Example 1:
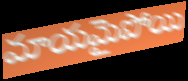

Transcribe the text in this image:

మాయమైపోయి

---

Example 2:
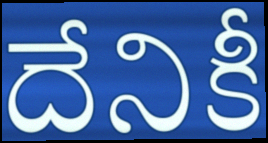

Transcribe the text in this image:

దేనికీ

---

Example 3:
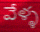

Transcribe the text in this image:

వేళ్ళ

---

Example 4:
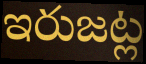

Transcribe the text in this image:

ఇరుజట్ల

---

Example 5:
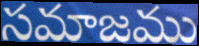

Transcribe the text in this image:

సమాజము